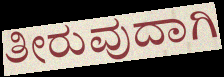
ತೀರುವುದಾಗಿ